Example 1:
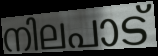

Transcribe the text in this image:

നിലപാട്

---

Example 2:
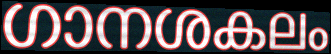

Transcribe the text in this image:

ഗാനശകലം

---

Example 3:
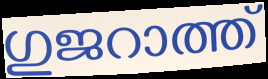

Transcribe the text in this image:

ഗുജറാത്ത്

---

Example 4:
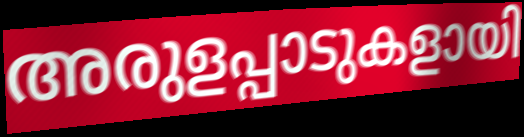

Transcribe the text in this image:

അരുളപ്പാടുകളായി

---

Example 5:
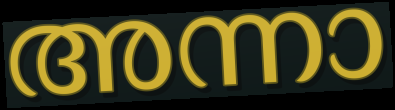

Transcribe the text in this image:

അന്നാ